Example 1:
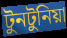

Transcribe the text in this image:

টুনটুনিয়া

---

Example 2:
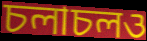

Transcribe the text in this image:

চলাচলও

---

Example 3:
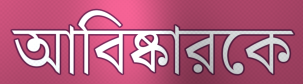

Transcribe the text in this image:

আবিষ্কারকে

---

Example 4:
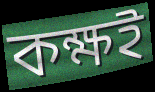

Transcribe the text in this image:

কক্ষই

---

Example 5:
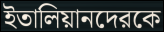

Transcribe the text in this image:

ইতালিয়ানদেরকে